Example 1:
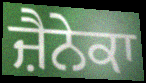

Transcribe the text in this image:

ਜ਼ੈਨੇਕਾ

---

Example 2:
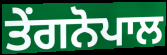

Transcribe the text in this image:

ਤੇਂਗਨੋਪਾਲ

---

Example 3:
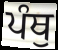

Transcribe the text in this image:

ਪੰਥੁ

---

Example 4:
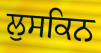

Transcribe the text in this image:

ਲੁਸਕਿਨ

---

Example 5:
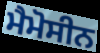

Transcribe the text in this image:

ਮੈਮੋਸੀਨ